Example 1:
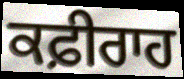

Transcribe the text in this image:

ਕਫ਼ੀਰਾਹ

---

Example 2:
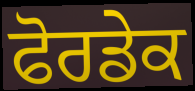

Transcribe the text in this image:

ਫੋਰਡੇਕ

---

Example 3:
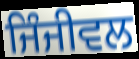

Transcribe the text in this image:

ਜਿੰਜੀਵਲ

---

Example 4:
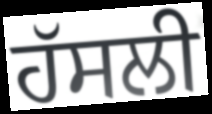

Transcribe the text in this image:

ਹੱਸਲੀ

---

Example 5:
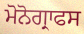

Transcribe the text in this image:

ਮੋਨੋਗ੍ਰਾਫਸ